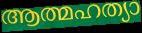
ആത്മഹത്യാ